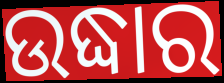
ଉଦ୍ଧାର